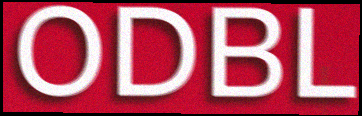
ODBL